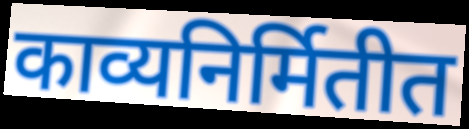
काव्यनिर्मितीत